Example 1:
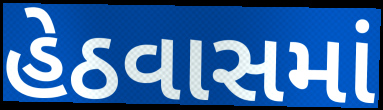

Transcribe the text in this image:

હેઠવાસમાં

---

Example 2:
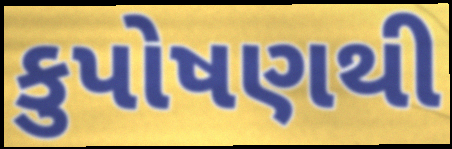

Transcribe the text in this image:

કુપોષણથી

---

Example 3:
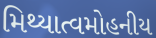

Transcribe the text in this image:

મિથ્યાત્વમોહનીય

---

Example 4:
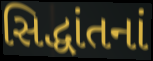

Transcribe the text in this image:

સિદ્ધાંતનાં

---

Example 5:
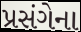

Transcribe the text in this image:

પ્રસંગેના